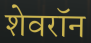
शेवरॉन